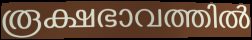
രൂക്ഷഭാവത്തിൽ